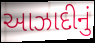
આઝાદીનું